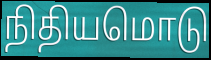
நிதியமொடு